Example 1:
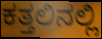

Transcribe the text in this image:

ಕತ್ತಲಿನಲ್ಲಿ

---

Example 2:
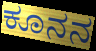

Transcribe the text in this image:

ಕೂನನ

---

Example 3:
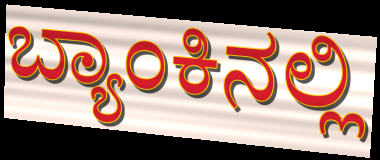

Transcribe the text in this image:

ಬ್ಯಾಂಕಿನಲ್ಲಿ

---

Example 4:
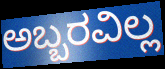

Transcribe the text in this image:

ಅಬ್ಬರವಿಲ್ಲ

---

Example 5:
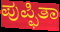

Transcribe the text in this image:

ಪುಪ್ಫಿತಾ